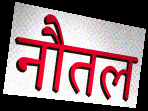
नौतल